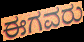
ಈಗವರು